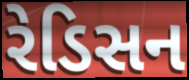
રેડિસન